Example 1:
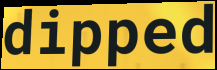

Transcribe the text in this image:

dipped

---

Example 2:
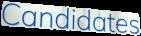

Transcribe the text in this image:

Candidates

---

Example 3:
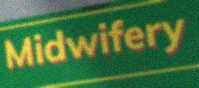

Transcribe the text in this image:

Midwifery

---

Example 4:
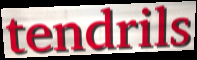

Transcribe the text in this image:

tendrils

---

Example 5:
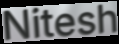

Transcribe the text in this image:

Nitesh